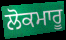
ਲੋਕਮਾਰੂ